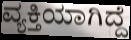
ವ್ಯಕ್ತಿಯಾಗಿದ್ದೆ